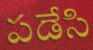
పడేసి